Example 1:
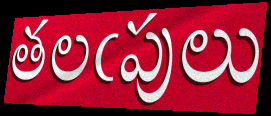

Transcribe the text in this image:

తలఁపులు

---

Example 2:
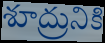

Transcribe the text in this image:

శూద్రునికి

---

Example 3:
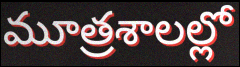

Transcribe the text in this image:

మూత్రశాలల్లో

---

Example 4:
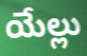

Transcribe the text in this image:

యేల్లు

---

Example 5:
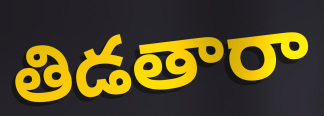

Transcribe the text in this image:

తిడతారా